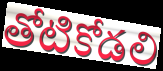
తోటికోడలి